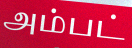
அம்பட்